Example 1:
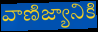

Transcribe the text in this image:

వాణిజ్యానికి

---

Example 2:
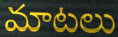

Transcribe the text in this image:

మాటలు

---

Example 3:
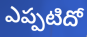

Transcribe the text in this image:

ఎప్పటిదో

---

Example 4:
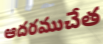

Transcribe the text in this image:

ఆదరముచేత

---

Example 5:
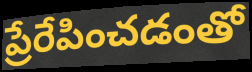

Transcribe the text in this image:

ప్రేరేపించడంతో